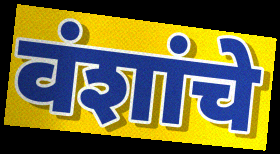
वंशांचे